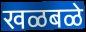
खळबळे